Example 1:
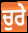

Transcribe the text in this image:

ਚੁਰੇ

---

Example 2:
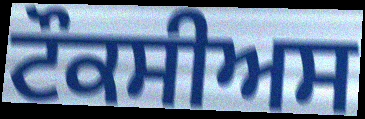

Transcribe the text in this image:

ਟੌਕਸੀਅਸ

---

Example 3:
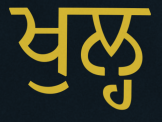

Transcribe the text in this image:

ਖੁਲ੍ਹ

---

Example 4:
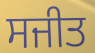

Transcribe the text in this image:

ਸਜੀਤ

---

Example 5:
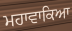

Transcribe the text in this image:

ਮਹਾਵਾਕਿਆ